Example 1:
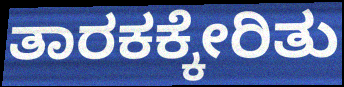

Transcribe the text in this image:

ತಾರಕಕ್ಕೇರಿತು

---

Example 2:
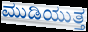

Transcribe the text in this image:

ಮುಡಿಯುತ್ತ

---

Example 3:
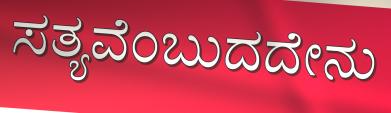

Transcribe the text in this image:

ಸತ್ಯವೆಂಬುದದೇನು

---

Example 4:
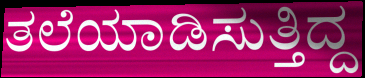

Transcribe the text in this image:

ತಲೆಯಾಡಿಸುತ್ತಿದ್ದ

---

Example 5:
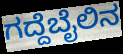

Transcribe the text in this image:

ಗದ್ದೆಬೈಲಿನ